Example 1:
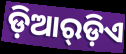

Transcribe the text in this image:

ଡ଼ିଆର୍‌ଡ଼ିଏ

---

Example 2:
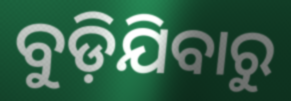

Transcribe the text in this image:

ବୁଡ଼ିଯିବାରୁ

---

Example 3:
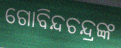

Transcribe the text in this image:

ଗୋବିନ୍ଦଚନ୍ଦ୍ରଙ୍କ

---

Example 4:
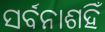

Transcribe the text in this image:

ସର୍ବନାଶହିଁ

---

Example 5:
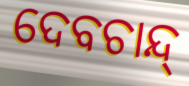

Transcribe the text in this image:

ଦେବଚାନ୍ଦ୍